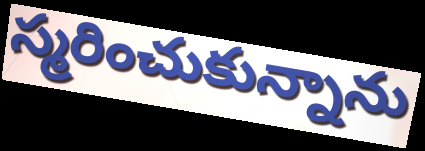
స్మరించుకున్నాను